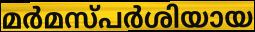
മർമസ്പർശിയായ